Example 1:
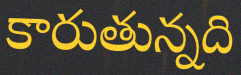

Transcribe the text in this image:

కారుతున్నది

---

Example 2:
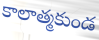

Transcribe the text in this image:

కాలాత్మకుండ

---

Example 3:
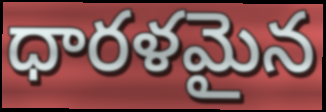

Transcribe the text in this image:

ధారళమైన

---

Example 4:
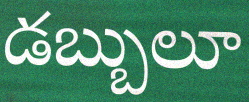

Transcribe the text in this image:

డబ్బులూ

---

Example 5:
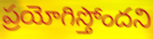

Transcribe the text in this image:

ప్రయోగిస్తోందని